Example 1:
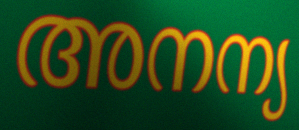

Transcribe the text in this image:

അനന്യ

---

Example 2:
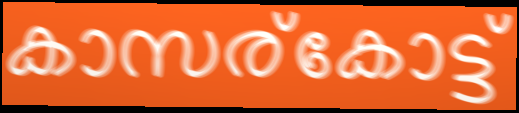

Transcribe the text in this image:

കാസര്കോട്ട്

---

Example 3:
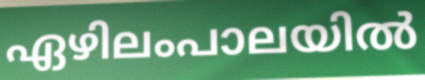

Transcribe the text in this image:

ഏഴിലംപാലയിൽ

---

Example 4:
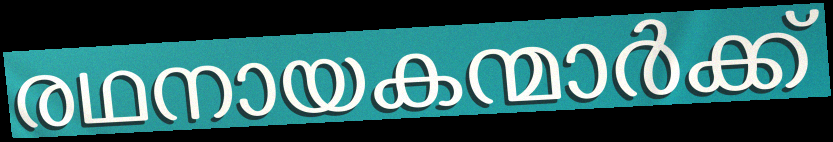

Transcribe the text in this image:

രഥനായകന്മാർക്ക്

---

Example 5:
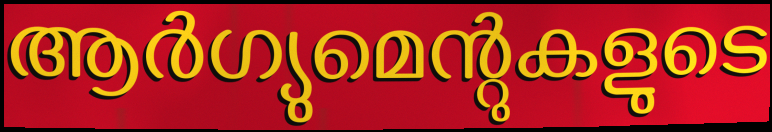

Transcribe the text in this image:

ആർഗ്യുമെന്റുകളുടെ